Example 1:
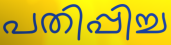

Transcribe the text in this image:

പതിപ്പിച്ച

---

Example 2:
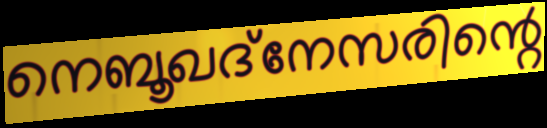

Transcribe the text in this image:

നെബൂഖദ്നേസരിന്റെ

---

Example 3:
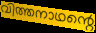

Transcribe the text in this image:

വിത്തനാഥന്റെ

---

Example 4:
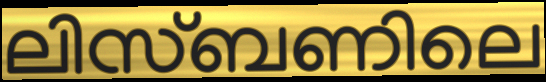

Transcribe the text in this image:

ലിസ്ബണിലെ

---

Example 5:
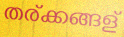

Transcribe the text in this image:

തര്ക്കങ്ങള്